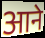
आने